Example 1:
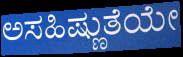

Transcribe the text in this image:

ಅಸಹಿಷ್ಣುತೆಯೇ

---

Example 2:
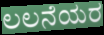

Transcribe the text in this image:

ಲಲನೆಯರ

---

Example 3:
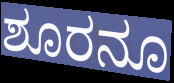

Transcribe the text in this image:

ಶೂರನೂ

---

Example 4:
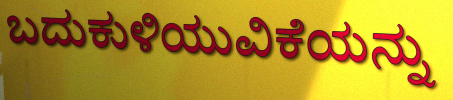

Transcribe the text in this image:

ಬದುಕುಳಿಯುವಿಕೆಯನ್ನು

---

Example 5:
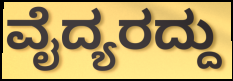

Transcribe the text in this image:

ವೈದ್ಯರದ್ದು